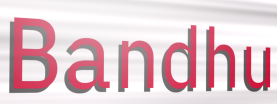
Bandhu